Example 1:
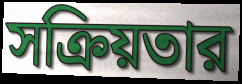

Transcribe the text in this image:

সক্রিয়তার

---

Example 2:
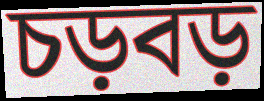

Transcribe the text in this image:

চড়বড়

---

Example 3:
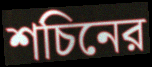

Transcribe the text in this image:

শচিনের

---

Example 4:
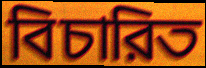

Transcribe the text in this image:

বিচারিত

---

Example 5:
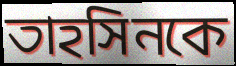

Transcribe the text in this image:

তাহসিনকে